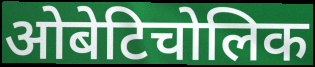
ओबेटिचोलिक